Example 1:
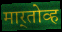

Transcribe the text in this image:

मार्तोव्ह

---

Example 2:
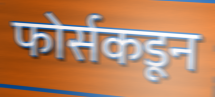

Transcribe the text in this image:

फोर्सकडून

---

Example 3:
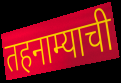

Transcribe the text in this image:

तहनाम्याची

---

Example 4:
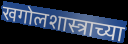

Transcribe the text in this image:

खगोलशास्त्राच्या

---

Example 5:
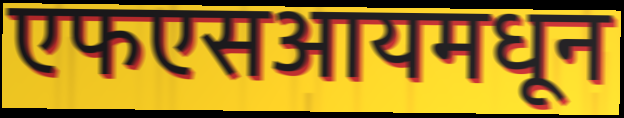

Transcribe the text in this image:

एफएसआयमधून